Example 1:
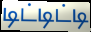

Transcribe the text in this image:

டிட்டிட்டி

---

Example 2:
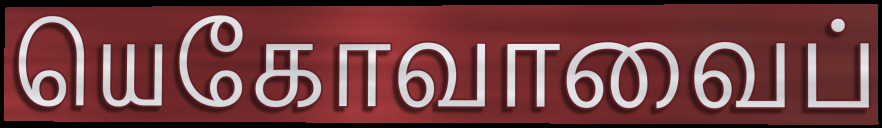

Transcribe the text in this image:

யெகோவாவைப்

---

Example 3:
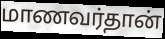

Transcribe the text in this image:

மாணவர்தான்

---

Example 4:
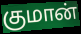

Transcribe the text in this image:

குமான்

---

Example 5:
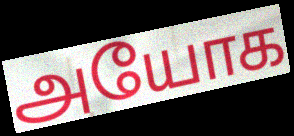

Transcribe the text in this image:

அயோக